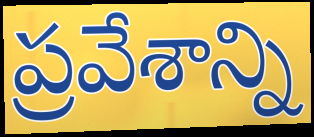
ప్రవేశాన్ని